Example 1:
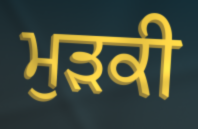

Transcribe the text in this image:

ਮੁੜਕੀ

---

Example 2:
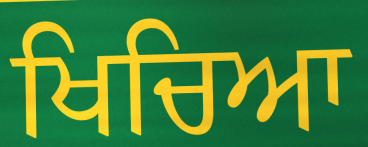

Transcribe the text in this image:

ਖਿਚਿਆ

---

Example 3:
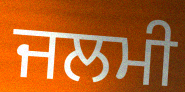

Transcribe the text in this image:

ਜਲਮੀ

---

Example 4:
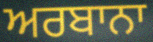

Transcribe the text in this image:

ਅਰਬਾਨਾ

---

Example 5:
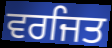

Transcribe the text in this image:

ਵਰਜਿਤ